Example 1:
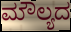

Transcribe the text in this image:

ಮೌಲ್ಯದ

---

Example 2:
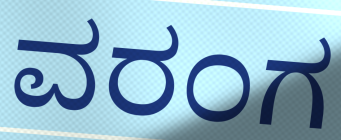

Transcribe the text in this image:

ವರಂಗ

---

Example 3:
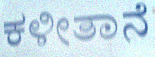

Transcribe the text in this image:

ಕಳೀತಾನೆ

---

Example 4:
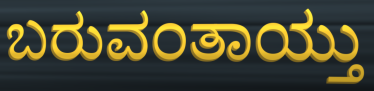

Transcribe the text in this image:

ಬರುವಂತಾಯ್ತು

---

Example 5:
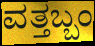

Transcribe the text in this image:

ವತ್ತಬ್ಬಂ